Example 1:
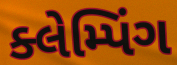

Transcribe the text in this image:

ક્લેમ્પિંગ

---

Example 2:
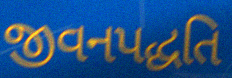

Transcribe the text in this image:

જીવનપદ્ધતિ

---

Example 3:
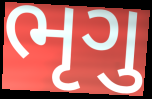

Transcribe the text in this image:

ભૃગુ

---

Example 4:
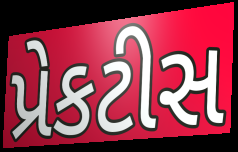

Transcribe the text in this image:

પ્રેકટીસ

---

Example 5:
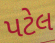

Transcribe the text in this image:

પટેલ